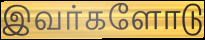
இவர்களோடு